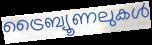
ട്രൈബ്യൂണലുകൾ